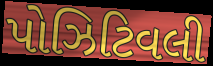
પોઝિટિવલી